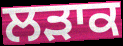
ਲੜਾਕ